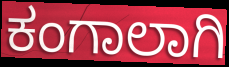
ಕಂಗಾಲಾಗಿ